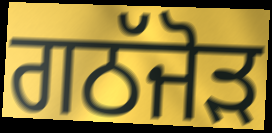
ਗਠੱਜੋੜ